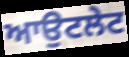
ਆਉਟਲੇਟ